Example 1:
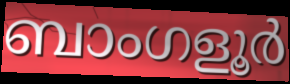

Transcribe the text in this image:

ബാംഗളൂർ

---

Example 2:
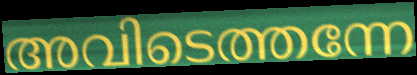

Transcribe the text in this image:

അവിടെത്തന്നേ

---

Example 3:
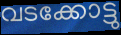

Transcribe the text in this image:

വടക്കോട്ടു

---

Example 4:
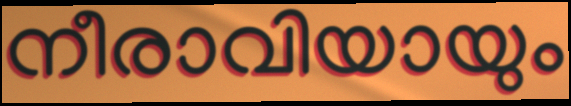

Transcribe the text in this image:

നീരാവിയായും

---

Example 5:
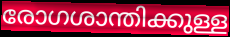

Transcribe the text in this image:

രോഗശാന്തിക്കുള്ള